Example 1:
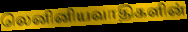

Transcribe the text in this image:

லெனினியவாதிகளின்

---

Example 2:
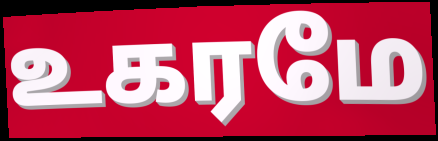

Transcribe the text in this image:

உகரமே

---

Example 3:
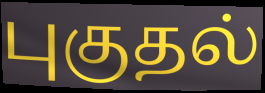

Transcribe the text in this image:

புகுதல்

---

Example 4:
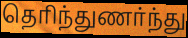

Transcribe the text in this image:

தெரிந்துணர்ந்து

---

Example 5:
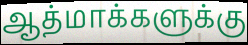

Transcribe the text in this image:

ஆத்மாக்களுக்கு